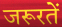
जरूरतें